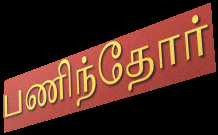
பணிந்தோர்